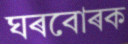
ঘৰবোৰক